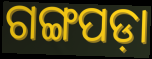
ଗଙ୍ଗପଡ଼ା